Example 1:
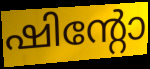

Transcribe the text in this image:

ഷിന്റോ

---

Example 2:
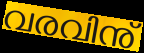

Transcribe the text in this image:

വരവിനു്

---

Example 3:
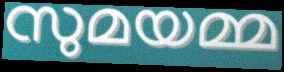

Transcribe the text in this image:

സുമയമ്മ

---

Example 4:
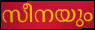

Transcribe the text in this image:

സീനയും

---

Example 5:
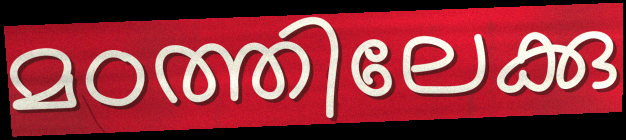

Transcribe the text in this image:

മഠത്തിലേക്കു